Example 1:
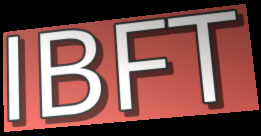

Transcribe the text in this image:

IBFT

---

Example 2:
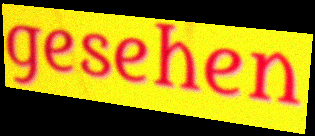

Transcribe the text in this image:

gesehen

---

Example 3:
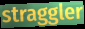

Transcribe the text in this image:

straggler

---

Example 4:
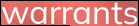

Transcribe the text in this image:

warrants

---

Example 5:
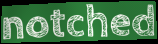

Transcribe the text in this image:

notched